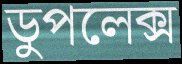
ডুপলেক্স